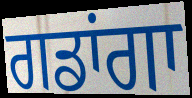
ਗਡਾਂਗਾ